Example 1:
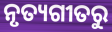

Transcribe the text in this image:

ନୃତ୍ୟଗୀତରୁ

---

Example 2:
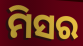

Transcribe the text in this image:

ମିସର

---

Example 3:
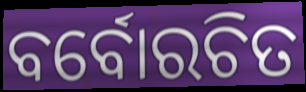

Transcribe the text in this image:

ବର୍ବୋରଚିତ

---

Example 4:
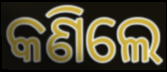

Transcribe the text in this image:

କଣିଲେ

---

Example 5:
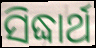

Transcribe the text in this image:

ସିଦ୍ଧାର୍ଥ